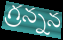
గ్రన్నన